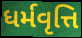
ધર્મવૃત્તિ